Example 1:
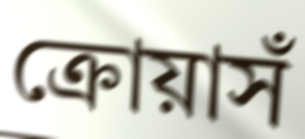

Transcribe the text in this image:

ক্রোয়াসঁ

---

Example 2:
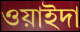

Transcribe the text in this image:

ওয়াইদা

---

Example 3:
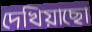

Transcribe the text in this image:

দেখিয়াছো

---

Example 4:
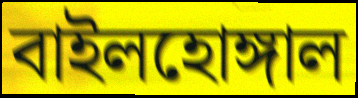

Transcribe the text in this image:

বাইলহোঙ্গাল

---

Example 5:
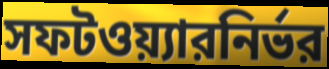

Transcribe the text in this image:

সফটওয়্যারনির্ভর